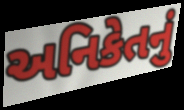
અનિકેતનું